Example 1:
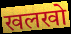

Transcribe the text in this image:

खलखो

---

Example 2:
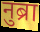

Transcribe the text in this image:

नुब्रा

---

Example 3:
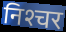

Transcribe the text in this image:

निश्चर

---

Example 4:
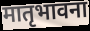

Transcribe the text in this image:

मातृभावना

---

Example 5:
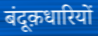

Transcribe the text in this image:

बंदूक़धारियों